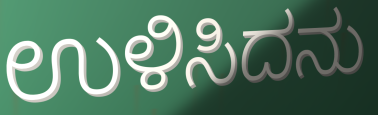
ಉಳಿಸಿದನು